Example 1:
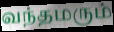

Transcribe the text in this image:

வந்தமரும்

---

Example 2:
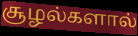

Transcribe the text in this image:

சூழல்களால்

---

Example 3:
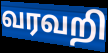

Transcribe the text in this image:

வரவறி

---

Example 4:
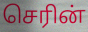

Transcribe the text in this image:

செரின்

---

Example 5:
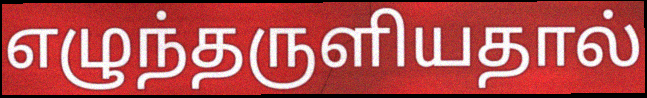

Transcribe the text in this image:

எழுந்தருளியதால்